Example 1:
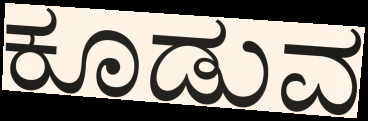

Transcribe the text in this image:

ಕೂಡುವ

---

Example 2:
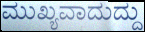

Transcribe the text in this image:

ಮುಖ್ಯವಾದುದ್ದು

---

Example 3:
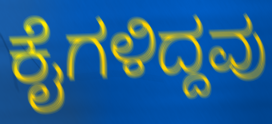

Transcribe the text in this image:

ಕೈಗಳಿದ್ದವು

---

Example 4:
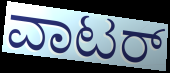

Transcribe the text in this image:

ವಾಟರ್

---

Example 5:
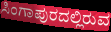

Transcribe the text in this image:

ಸಿಂಗಾಪುರದಲ್ಲಿರುವ